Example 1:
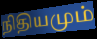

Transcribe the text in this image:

நிதியமும்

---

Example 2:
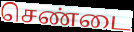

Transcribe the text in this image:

செண்டை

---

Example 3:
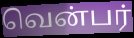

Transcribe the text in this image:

வென்பர்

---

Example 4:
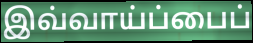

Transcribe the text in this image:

இவ்வாய்ப்பைப்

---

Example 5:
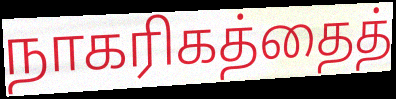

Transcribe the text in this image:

நாகரிகத்தைத்